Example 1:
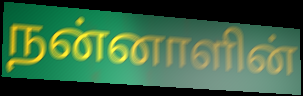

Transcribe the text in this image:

நன்னாளின்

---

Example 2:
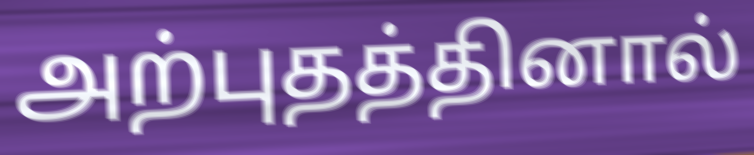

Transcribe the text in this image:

அற்புதத்தினால்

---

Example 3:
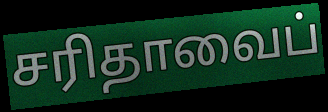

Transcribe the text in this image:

சரிதாவைப்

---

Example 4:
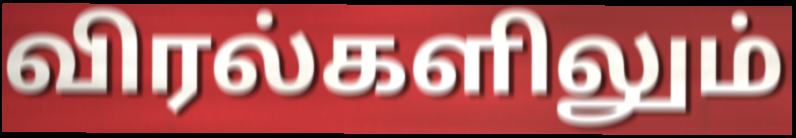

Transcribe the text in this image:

விரல்களிலும்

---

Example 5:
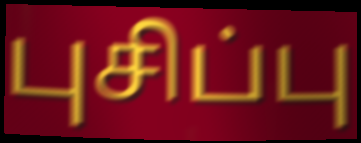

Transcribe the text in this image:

புசிப்பு